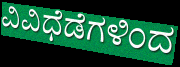
ವಿವಿಧೆಡೆಗಳಿಂದ